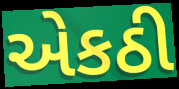
એકઠી